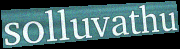
solluvathu